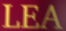
LEA